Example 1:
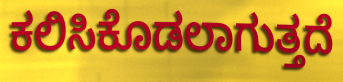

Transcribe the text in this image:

ಕಲಿಸಿಕೊಡಲಾಗುತ್ತದೆ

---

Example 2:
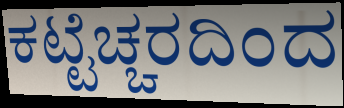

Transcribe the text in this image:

ಕಟ್ಟೆಚ್ಚರದಿಂದ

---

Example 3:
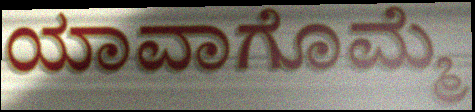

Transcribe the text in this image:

ಯಾವಾಗೊಮ್ಮೆ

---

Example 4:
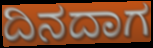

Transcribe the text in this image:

ದಿನದಾಗ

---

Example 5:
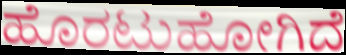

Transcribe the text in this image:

ಹೊರಟುಹೋಗಿದೆ